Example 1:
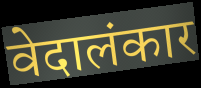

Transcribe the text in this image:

वेदालंकार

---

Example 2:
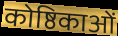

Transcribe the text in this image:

कोष्ठिकाओं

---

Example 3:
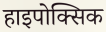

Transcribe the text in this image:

हाइपोक्सिक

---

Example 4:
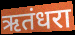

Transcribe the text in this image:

ऋतंधरा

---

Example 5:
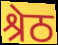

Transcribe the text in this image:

श्रेठ